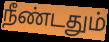
நீண்டதும்